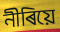
নীৰিয়ে